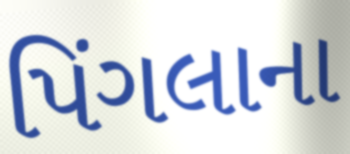
પિંગલાના